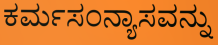
ಕರ್ಮಸಂನ್ಯಾಸವನ್ನು